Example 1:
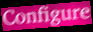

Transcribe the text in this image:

Configure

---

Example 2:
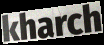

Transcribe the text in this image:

kharch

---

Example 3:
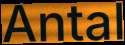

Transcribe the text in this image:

Antal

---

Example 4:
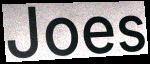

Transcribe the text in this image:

Joes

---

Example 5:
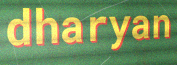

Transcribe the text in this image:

dharyan